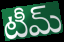
టీమ్